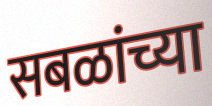
सबळांच्या